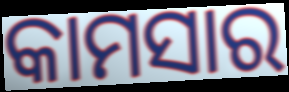
କାମସାର